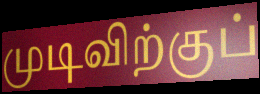
முடிவிற்குப்